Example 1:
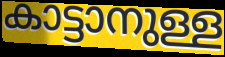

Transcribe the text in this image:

കാട്ടാനുള്ള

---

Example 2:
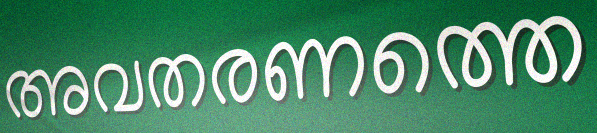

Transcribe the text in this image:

അവതരണത്തെ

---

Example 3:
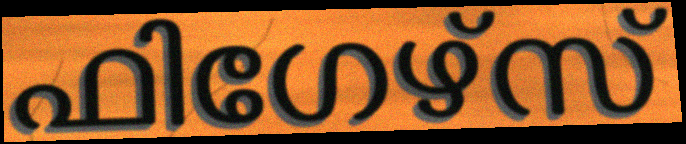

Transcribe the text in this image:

ഫിഗേഴ്സ്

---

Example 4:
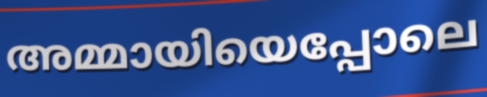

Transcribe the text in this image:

അമ്മായിയെപ്പോലെ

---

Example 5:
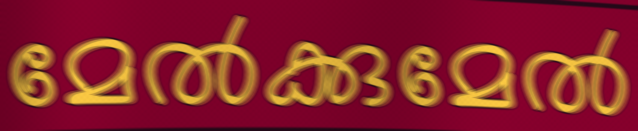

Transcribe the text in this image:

മേൽക്കുമേൽ